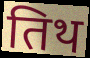
तिथ